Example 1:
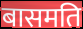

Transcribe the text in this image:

बासमति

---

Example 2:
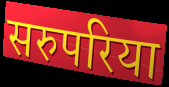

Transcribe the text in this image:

सरुपरिया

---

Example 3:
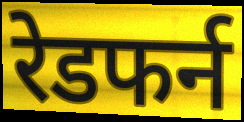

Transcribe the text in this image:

रेडफर्न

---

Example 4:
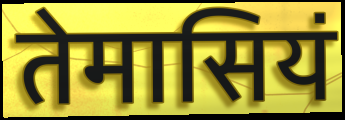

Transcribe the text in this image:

तेमासियं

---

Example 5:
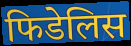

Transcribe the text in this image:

फिडेलिस